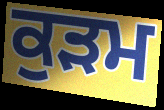
ਕੁੜਮ